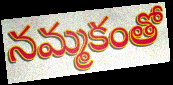
నమ్మకంతో